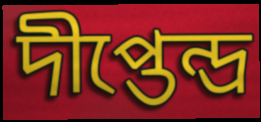
দীপ্তেন্দ্র